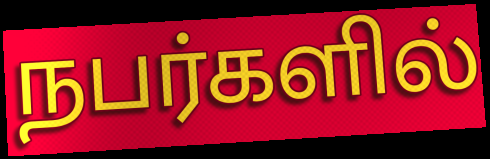
நபர்களில்